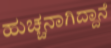
ಹುಚ್ಚನಾಗಿದ್ದಾನೆ